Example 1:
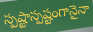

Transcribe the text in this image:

స్పష్టాస్పష్టంగానైనా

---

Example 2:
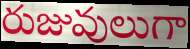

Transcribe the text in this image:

రుజువులుగా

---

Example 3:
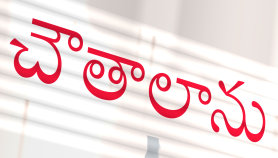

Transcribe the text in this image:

చౌతాలాను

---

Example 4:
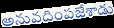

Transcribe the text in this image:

అనువదింపజేశాడు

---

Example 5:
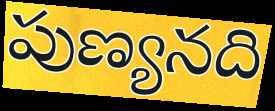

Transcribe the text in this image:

పుణ్యనది